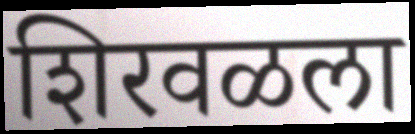
शिरवळला